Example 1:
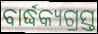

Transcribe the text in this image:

ବାର୍ଦ୍ଧକ୍ୟଗ୍ରସ୍ତ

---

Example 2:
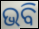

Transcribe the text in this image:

ଭବି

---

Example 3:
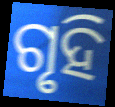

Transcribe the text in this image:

ଗୃହି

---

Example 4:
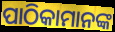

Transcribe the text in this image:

ପାଠିକାମାନଙ୍କ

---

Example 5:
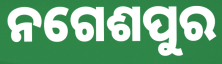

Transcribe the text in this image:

ନଗେଶପୁର